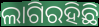
ଲାଗିରହିଛି